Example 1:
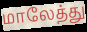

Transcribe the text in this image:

மாலேத்து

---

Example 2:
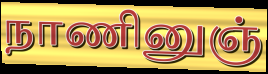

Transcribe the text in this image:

நாணினுஞ்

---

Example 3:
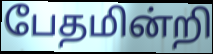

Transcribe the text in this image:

பேதமின்றி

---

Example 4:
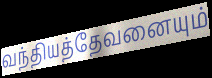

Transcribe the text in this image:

வந்தியத்தேவனையும்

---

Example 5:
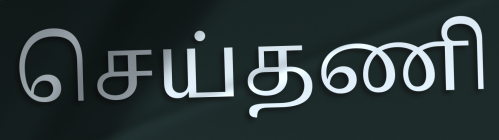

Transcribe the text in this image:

செய்தணி